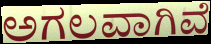
ಅಗಲವಾಗಿವೆ